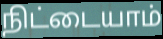
நிட்டையாம்